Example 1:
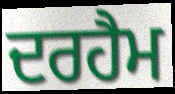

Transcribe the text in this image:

ਦਰਹੈਮ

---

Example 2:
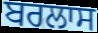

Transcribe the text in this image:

ਬਰਲਾਸ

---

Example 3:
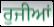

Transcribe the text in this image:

ਰੁਜੀਆਂ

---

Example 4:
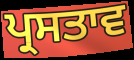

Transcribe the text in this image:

ਪ੍ਰਸਤਾਵ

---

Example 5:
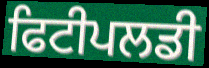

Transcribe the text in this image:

ਫਿਟੀਪਲਡੀ